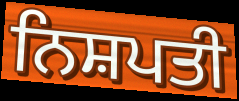
ਨਿਸ਼ਪਤੀ